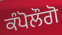
ਕੰਪੋਲੌਗੋ